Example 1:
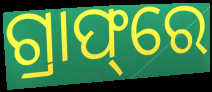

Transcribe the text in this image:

ଗ୍ରାଫ୍‌ରେ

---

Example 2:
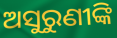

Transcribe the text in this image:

ଅସୁରୁଣୀଙ୍କି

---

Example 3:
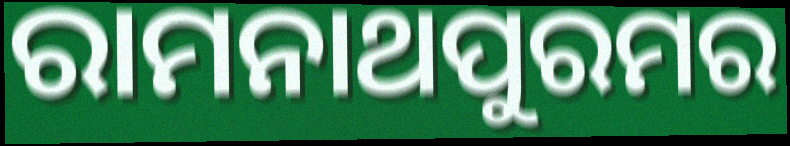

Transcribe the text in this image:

ରାମନାଥପୁରମର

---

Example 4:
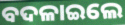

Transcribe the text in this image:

ବଦଳାଇଲେ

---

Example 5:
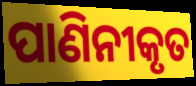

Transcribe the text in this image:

ପାଣିନୀକୃତ